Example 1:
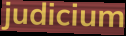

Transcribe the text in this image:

judicium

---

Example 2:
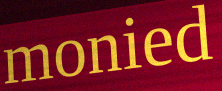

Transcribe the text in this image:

monied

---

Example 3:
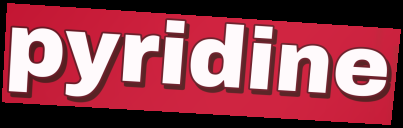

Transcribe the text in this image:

pyridine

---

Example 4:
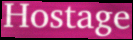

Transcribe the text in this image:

Hostage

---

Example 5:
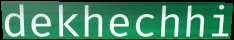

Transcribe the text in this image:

dekhechhi